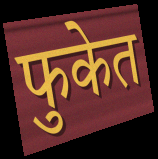
फुकेत